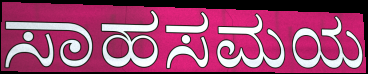
ಸಾಹಸಮಯ